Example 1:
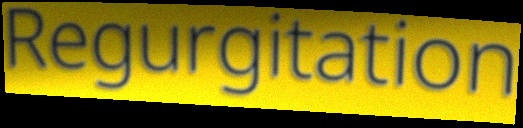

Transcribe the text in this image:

Regurgitation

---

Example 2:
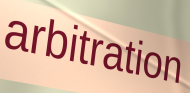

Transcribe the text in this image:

arbitration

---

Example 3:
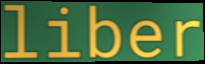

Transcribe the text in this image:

liber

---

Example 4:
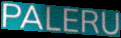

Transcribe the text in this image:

PALERU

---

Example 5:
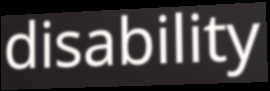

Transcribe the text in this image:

disability